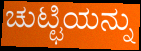
ಚುಟ್ಟಿಯನ್ನು